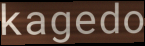
kagedo